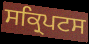
ਸਕ੍ਰਿਪਟਸ